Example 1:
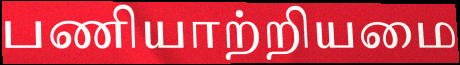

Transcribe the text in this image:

பணியாற்றியமை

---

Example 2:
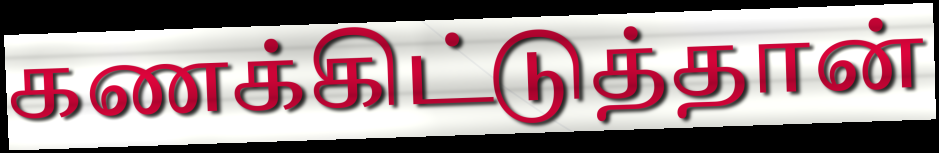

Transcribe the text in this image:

கணக்கிட்டுத்தான்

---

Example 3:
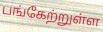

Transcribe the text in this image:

பங்கேற்றுள்ள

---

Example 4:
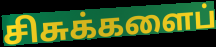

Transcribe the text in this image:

சிசுக்களைப்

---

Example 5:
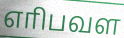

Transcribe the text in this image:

எரிபவள